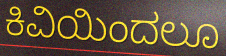
ಕಿವಿಯಿಂದಲೂ